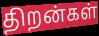
திறன்கள்